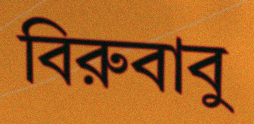
বিরুবাবু